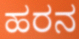
ಹರನ